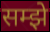
सम्झे